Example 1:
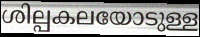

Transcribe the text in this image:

ശില്പകലയോടുള്ള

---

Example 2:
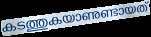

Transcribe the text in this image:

കടത്തുകയാണുണ്ടായത്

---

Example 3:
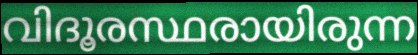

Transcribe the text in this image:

വിദൂരസ്ഥരായിരുന്ന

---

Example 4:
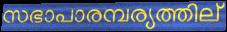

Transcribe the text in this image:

സഭാപാരമ്പര്യത്തില്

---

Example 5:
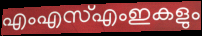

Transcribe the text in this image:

എംഎസ്എംഇകളും